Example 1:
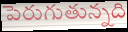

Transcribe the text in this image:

పెరుగుతున్నది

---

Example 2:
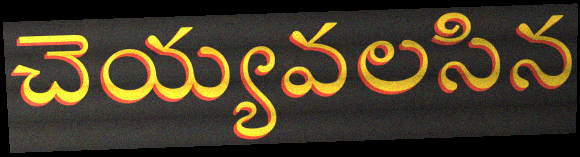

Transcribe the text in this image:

చెయ్యవలసిన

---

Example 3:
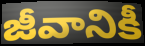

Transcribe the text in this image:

జీవానికీ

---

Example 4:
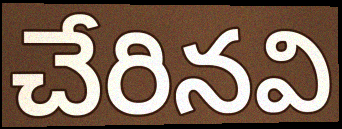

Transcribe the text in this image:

చేరినవి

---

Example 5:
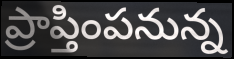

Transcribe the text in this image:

ప్రాప్తింపనున్న